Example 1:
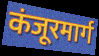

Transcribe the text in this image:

कंजूरमार्ग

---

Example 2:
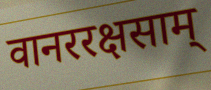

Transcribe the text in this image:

वानररक्षसाम्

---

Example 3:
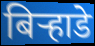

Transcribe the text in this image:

बिऱ्हाडे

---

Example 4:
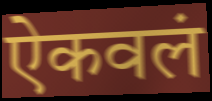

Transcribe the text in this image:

ऐकवलं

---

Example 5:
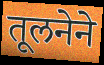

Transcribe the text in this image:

तूलनेने